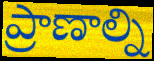
ప్రాణాల్ని